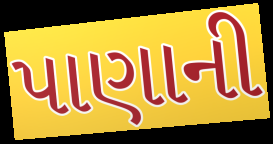
પાણાની